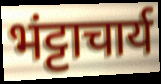
भंट्टाचार्य